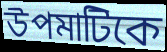
উপমাটিকে